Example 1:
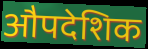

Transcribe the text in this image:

औपदेशिक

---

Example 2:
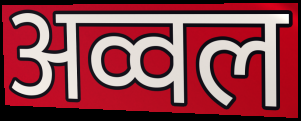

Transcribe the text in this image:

अव्वल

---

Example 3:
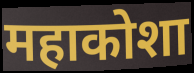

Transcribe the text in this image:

महाकोशा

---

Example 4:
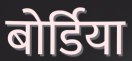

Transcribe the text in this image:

बोर्डिया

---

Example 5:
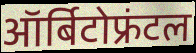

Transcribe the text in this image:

ऑर्बिटोफ्रंटल